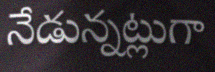
నేడున్నట్లుగా